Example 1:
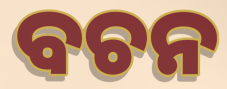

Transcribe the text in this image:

ବଚନ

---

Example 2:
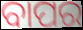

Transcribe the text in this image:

ବାପର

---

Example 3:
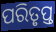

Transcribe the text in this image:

ପରିତୃପ୍ତ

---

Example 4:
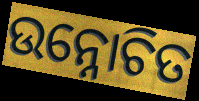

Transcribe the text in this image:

ଉନ୍ନୋଚିତ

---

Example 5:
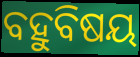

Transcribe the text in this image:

ବହୁବିଷୟ